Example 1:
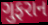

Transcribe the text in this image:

ગુફરાન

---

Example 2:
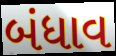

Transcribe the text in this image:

બંધાવ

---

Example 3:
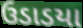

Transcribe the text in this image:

ઉડાડયા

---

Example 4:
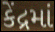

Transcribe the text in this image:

કેંદ્રમાં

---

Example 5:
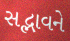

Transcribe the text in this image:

સદ્ભાવને